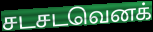
சடசடவெனக்